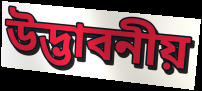
উদ্ভাবনীয়